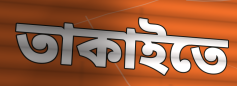
তাকাইতে